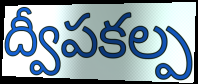
ద్వీపకల్ప